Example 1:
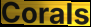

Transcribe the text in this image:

Corals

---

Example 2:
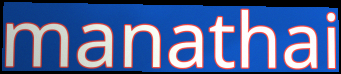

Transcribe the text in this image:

manathai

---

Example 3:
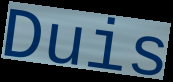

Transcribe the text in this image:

Duis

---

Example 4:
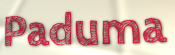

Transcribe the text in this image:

Paduma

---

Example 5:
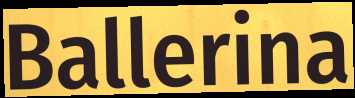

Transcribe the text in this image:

Ballerina